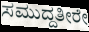
ಸಮುದ್ದತೀರೇ